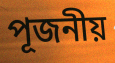
পূজনীয়